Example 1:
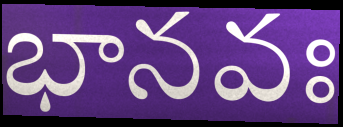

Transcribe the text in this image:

భానవః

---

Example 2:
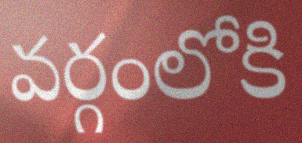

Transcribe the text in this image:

వర్గంలోకి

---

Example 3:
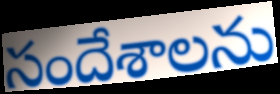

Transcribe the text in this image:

సందేశాలను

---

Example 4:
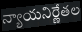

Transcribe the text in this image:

న్యాయనిర్ణేతల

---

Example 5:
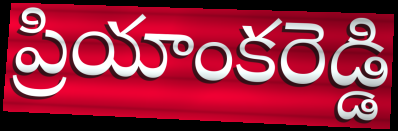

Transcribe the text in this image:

ప్రియాంకరెడ్డి